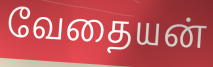
வேதையன்